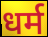
धर्म